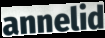
annelid